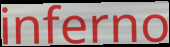
inferno